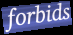
forbids